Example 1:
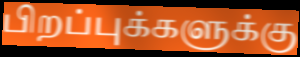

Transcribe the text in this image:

பிறப்புக்களுக்கு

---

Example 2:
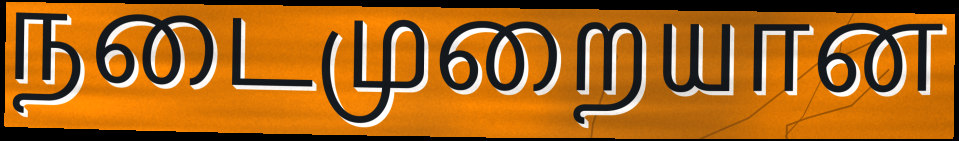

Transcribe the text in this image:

நடைமுறையான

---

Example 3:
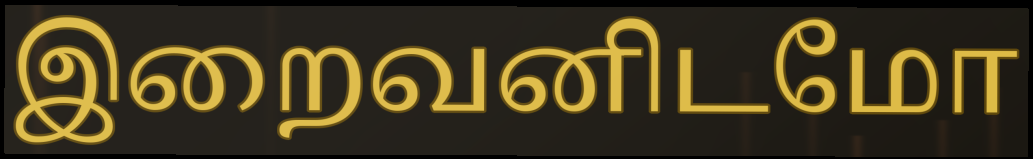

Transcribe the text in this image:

இறைவனிடமோ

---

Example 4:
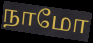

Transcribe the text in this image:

நாமோ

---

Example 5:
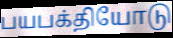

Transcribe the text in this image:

பயபக்தியோடு